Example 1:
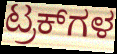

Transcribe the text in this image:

ಟ್ರಕ್‌ಗಳ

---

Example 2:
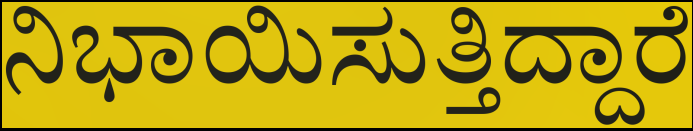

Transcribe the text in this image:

ನಿಭಾಯಿಸುತ್ತಿದ್ದಾರೆ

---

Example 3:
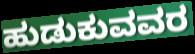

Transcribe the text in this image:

ಹುಡುಕುವವರ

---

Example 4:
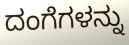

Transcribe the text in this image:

ದಂಗೆಗಳನ್ನು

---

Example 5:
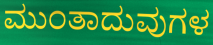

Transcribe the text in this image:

ಮುಂತಾದುವುಗಳ